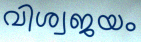
വിശ്വജയം